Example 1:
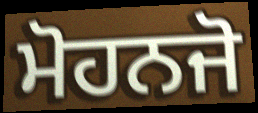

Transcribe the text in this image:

ਮੋਹਨਜੋ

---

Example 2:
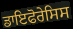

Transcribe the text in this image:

ਡਾਇਫੋਰੇਸਿਸ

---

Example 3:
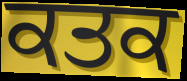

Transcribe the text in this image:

ਕਤਕ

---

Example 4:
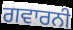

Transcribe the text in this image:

ਗਵਾਰਨੀ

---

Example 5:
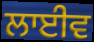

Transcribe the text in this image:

ਲਾਈਵ